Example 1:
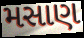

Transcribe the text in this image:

મસાણ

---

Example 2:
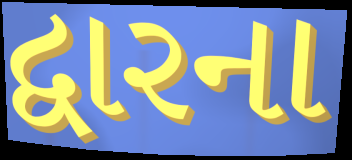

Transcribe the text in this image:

દ્વારના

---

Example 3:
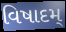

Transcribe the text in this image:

વિષાદમ્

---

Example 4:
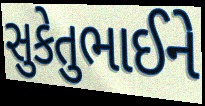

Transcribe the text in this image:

સુકેતુભાઈને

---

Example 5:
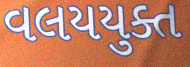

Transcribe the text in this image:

વલયયુક્ત